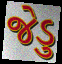
જેડુ